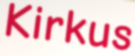
Kirkus